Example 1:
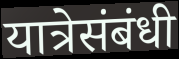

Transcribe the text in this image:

यात्रेसंबंधी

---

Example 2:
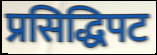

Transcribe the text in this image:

प्रसिद्धिपट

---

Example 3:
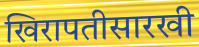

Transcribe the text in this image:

खिरापतीसारखी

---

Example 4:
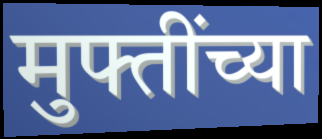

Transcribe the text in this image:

मुफ्तींच्या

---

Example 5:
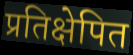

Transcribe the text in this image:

प्रतिक्षेपित